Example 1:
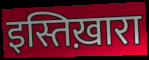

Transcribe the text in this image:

इस्तिख़ारा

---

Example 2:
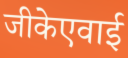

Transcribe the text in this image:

जीकेएवाई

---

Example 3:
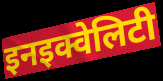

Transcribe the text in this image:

इनइक्वेलिटी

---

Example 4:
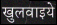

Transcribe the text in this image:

खुलवाइये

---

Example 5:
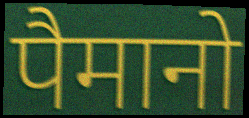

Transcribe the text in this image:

पैमानो